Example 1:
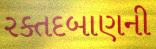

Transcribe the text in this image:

રક્તદબાણની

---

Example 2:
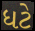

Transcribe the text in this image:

ધટે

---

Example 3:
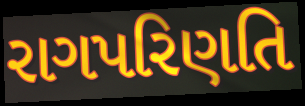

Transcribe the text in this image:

રાગપરિણતિ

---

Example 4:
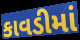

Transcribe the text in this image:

કાવડીમાં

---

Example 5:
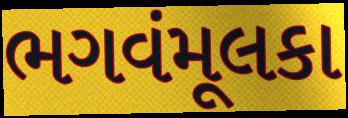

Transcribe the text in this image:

ભગવંમૂલકા